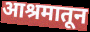
आश्रमातून